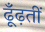
ढूँढ़तीं